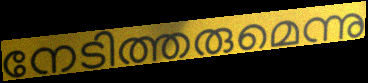
നേടിത്തരുമെന്നു